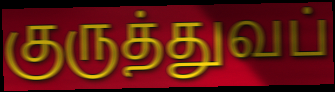
குருத்துவப்